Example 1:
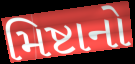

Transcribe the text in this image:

મિષ્ટાનો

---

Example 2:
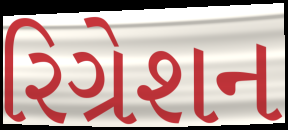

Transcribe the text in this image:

રિગ્રેશન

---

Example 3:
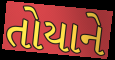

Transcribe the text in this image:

તોયાને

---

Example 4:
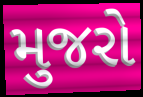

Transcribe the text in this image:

મુજરો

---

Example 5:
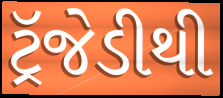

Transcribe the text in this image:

ટ્રૅજેડીથી